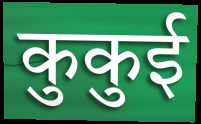
कुकुई